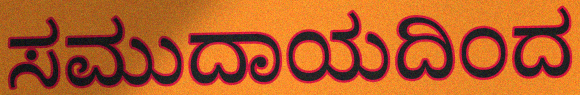
ಸಮುದಾಯದಿಂದ